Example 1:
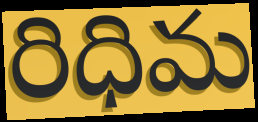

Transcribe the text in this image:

రిధిమ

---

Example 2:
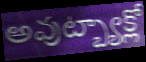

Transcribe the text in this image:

అవుట్బ్యాక్లో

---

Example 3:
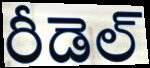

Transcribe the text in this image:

రీడెల్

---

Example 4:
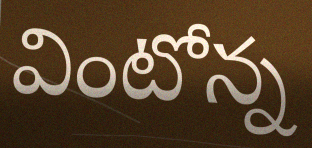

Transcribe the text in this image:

వింటోన్న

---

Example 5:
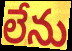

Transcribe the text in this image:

లేను